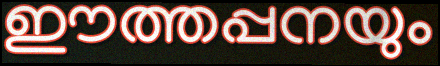
ഈത്തപ്പനയും